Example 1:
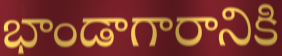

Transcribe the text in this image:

భాండాగారానికి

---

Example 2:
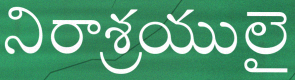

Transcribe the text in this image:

నిరాశ్రయులై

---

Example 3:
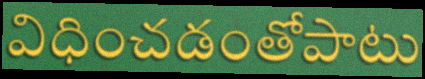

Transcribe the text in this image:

విధించడంతోపాటు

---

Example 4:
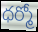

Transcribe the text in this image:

ధర్మో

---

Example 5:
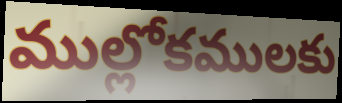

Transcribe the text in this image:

ముల్లోకములకు